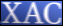
XAC